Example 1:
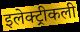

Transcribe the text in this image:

इलेक्ट्रीकली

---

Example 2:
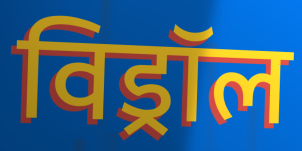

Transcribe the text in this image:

विड्रॉल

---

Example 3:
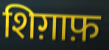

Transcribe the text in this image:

शिग़ाफ़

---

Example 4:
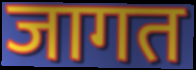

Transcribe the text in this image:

जागत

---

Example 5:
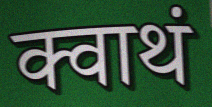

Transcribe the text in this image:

क्वाथं